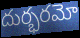
దుర్భరమో